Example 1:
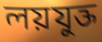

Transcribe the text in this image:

লয়যুক্ত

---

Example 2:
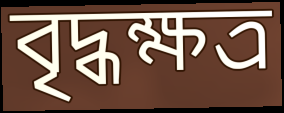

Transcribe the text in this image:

বৃদ্ধক্ষত্র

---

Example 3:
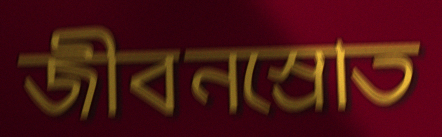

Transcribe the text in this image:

জীবনস্রোত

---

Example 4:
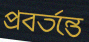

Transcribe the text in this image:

প্রবর্তন্তে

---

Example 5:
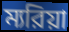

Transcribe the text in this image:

ম্যরিয়া